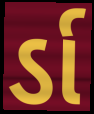
ર્ડા